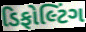
ડિફોલ્ટિંગ